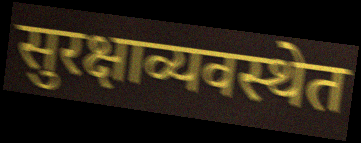
सुरक्षाव्यवस्थेत